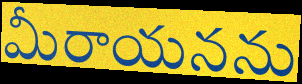
మీరాయనను